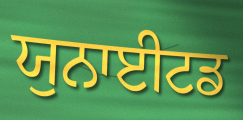
ਯੁਨਾਈਟਡ